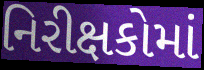
નિરીક્ષકોમાં